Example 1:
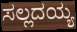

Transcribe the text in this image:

ಸಲ್ಲದಯ್ಯ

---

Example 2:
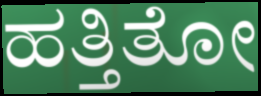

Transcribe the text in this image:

ಹತ್ತಿತೋ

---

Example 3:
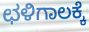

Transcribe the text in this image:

ಛಳಿಗಾಲಕ್ಕೆ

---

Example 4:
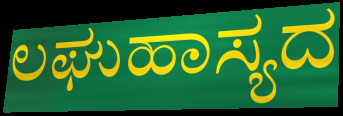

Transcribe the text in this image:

ಲಘುಹಾಸ್ಯದ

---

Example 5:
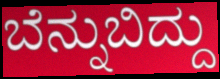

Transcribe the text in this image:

ಬೆನ್ನುಬಿದ್ದು